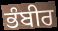
ਭੰਬੀਰ